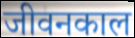
जीवनकाल